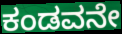
ಕಂಡವನೇ